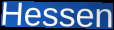
Hessen